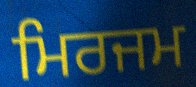
ਮਿਰਜਮ